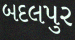
બદલપુર